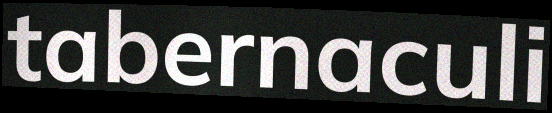
tabernaculi